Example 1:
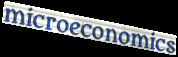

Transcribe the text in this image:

microeconomics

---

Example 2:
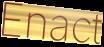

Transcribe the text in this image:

Enact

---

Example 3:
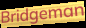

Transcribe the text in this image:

Bridgeman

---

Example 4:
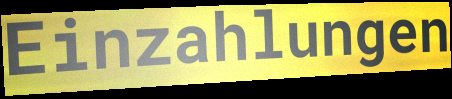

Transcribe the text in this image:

Einzahlungen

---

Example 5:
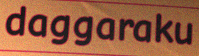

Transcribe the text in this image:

daggaraku